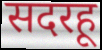
सदरहू